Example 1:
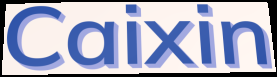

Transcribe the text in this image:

Caixin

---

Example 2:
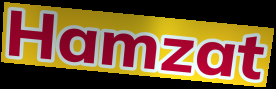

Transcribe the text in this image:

Hamzat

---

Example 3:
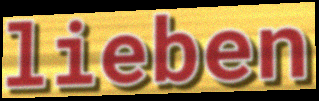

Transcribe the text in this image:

lieben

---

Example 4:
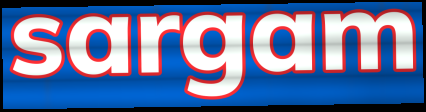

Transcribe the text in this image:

sargam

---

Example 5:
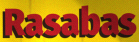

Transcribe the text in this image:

Rasabas